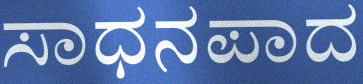
ಸಾಧನಪಾದ